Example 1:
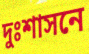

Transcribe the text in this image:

দুঃশাসনে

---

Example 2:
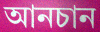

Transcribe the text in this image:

আনচান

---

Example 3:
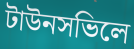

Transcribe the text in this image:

টাউনসভিলে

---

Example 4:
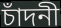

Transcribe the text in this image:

চাঁদনী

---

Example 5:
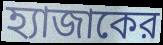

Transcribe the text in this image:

হ্যাজাকের